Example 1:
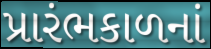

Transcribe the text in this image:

પ્રારંભકાળનાં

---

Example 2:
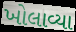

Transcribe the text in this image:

ખોલાવ્યા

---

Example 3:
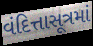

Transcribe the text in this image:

વંદિત્તાસૂત્રમાં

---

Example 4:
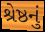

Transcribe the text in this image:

શ્રેષ્ઠનું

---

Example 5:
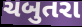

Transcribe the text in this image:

ચબુતરા